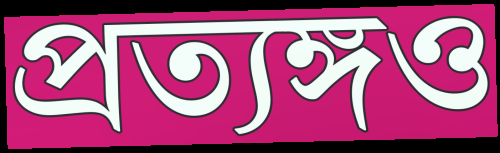
প্রত্যঙ্গও